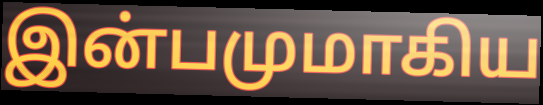
இன்பமுமாகிய